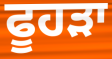
ਫੂਹੜਾ